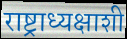
राष्ट्राध्यक्षाशी